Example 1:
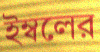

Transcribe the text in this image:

ইম্বলের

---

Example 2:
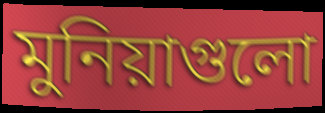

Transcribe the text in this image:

মুনিয়াগুলো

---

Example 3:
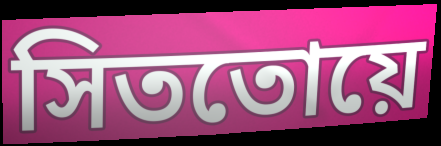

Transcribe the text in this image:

সিততোয়ে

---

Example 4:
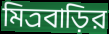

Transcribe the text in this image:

মিত্রবাড়ির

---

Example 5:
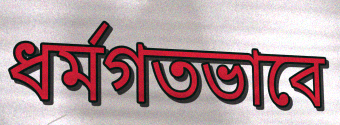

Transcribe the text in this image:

ধর্মগতভাবে